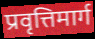
प्रवृत्तिमार्ग